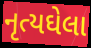
નૃત્યઘેલા